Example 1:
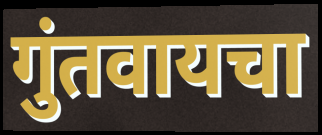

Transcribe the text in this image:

गुंतवायचा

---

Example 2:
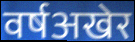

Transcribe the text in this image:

वर्षअखेर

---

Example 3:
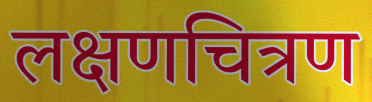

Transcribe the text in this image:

लक्षणचित्रण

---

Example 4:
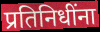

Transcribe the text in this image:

प्रतिनिधींना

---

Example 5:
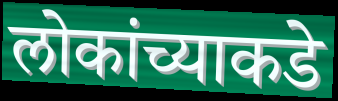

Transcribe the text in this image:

लोकांच्याकडे